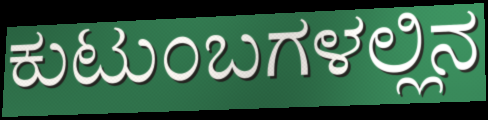
ಕುಟುಂಬಗಳಲ್ಲಿನ